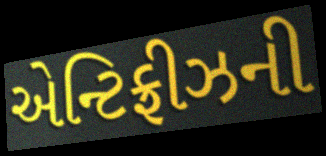
એન્ટિફ્રીઝની